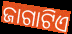
ଜାଗାଟିଏ